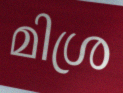
മിശ്ര